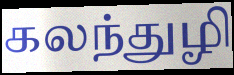
கலந்துழி